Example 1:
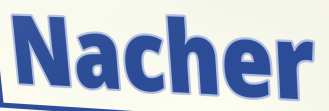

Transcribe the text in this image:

Nacher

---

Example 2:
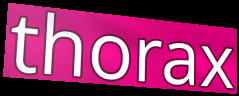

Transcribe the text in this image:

thorax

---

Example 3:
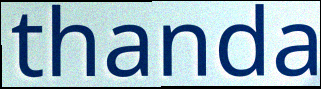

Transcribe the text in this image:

thanda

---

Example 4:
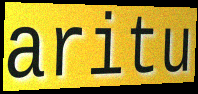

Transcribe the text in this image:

aritu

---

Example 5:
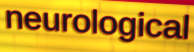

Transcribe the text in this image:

neurological